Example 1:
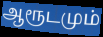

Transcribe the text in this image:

ஆரூடமும்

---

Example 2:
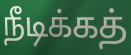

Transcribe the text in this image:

நீடிக்கத்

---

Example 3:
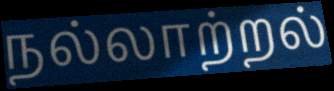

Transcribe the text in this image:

நல்லாற்றல்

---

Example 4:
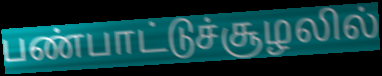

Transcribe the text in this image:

பண்பாட்டுச்சூழலில்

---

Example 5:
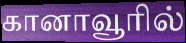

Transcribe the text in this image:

கானாவூரில்